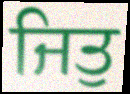
ਜਿਤੁ